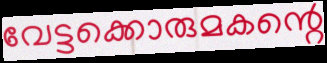
വേട്ടക്കൊരുമകന്റെ